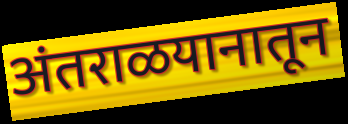
अंतराळयानातून